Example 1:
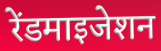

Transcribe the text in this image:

रेंडमाइजेशन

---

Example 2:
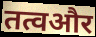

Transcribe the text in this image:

तत्वऔर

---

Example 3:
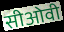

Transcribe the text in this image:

सीओवी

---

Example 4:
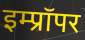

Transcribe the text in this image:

इम्प्रॉपर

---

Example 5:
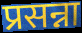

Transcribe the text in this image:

प्रसन्ना